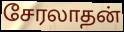
சேரலாதன்